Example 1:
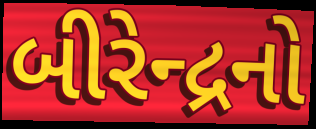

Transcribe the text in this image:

બીરેન્દ્રનો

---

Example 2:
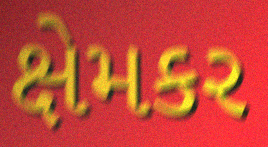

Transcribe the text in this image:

ક્ષેમકર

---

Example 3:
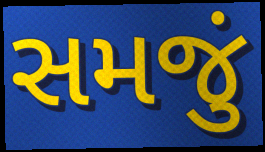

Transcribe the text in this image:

સમજું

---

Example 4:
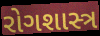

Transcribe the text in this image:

રોગશાસ્ત્ર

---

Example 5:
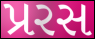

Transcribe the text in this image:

પ્રરસ